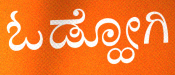
ಓಡ್ಹೋಗಿ